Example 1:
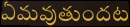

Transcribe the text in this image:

ఏమవుతుందట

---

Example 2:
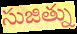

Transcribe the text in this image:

సుజిత్ను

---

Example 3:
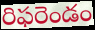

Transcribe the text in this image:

రిఫరెండం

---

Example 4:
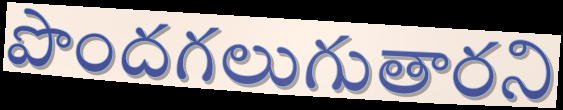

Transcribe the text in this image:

పొందగలుగుతారని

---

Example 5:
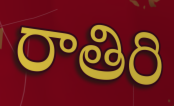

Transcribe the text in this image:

రాతిరి